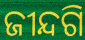
ଜୀନ୍ଦଗି